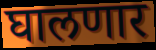
घालणार